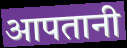
आपतानी